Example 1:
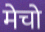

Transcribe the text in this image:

मेचो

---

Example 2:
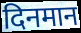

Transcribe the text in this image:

दिनमान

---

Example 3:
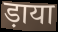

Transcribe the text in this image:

ड़ाया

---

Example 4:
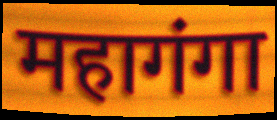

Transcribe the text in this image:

महागंगा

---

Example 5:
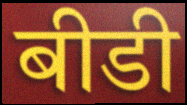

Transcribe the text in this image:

बीडी